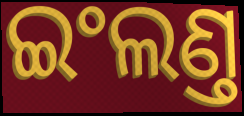
ଇଂଲଣ୍ତ